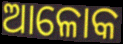
ଆଳୋକ